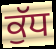
ਕੁੱਧ